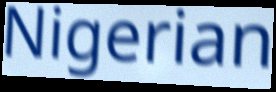
Nigerian